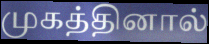
முகத்தினால்